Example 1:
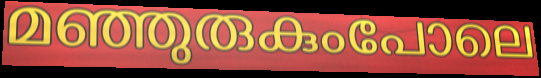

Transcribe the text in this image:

മഞ്ഞുരുകുംപോലെ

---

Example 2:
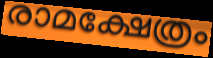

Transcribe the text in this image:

രാമക്ഷേത്രം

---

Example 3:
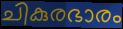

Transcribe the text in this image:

ചികുരഭാരം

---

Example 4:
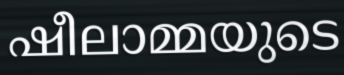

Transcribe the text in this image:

ഷീലാമ്മയുടെ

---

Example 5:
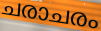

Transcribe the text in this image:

ചരാചരം